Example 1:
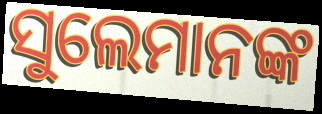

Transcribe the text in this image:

ସୁଲେମାନଙ୍କ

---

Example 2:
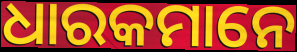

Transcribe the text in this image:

ଧାରକମାନେ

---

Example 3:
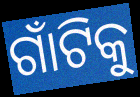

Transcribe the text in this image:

ଗାଁଟିକୁ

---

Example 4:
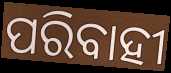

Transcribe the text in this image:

ପରିବାହୀ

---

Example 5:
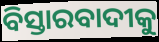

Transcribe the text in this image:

ବିସ୍ତାରବାଦୀକୁ